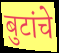
बुटांचे